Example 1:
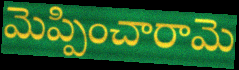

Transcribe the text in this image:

మెప్పించారామె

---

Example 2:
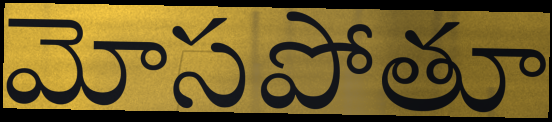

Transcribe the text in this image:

మోసపోతూ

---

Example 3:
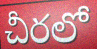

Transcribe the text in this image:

చీరలో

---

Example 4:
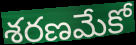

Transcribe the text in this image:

శరణమేకో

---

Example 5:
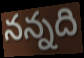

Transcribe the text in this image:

నన్నది